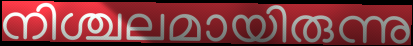
നിശ്ചലമായിരുന്നു